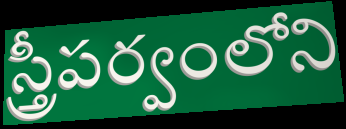
స్త్రీపర్వంలోని